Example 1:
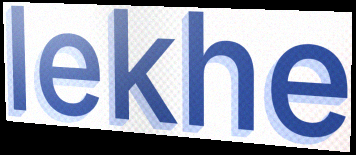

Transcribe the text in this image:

lekhe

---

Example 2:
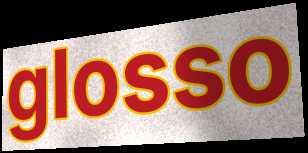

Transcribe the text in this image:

glosso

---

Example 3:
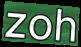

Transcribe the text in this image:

zoh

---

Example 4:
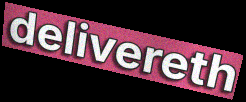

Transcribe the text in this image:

delivereth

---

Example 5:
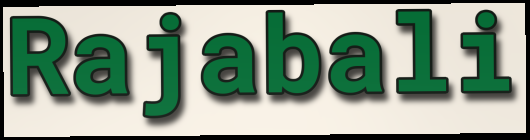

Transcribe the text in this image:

Rajabali